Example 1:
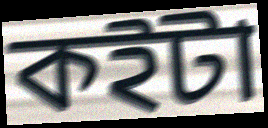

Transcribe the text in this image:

কইটা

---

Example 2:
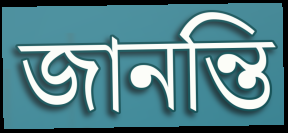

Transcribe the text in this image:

জানন্তি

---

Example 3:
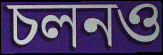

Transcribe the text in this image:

চলনও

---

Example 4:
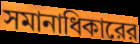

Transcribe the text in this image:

সমানাধিকারের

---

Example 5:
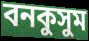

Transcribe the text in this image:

বনকুসুম